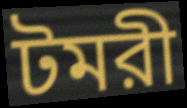
টমরী